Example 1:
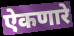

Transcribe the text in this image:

ऐकणारे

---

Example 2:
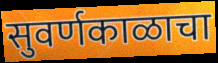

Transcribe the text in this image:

सुवर्णकाळाचा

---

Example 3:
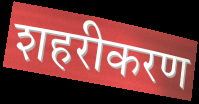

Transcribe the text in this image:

शहरीकरण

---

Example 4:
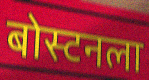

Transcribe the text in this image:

बोस्टनला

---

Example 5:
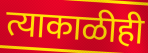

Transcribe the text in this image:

त्याकाळीही